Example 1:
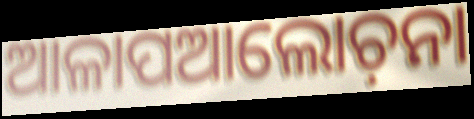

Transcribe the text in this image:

ଆଳାପଆଲୋଚ଼ନା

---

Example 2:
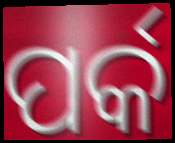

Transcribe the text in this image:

ପର୍କ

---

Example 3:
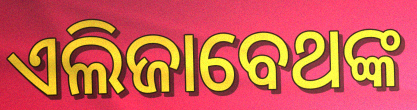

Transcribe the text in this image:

ଏଲିଜାବେଥଙ୍କ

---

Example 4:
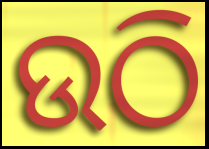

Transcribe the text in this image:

ଉଠି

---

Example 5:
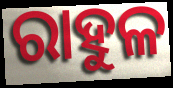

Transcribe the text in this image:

ରାହୁଳ